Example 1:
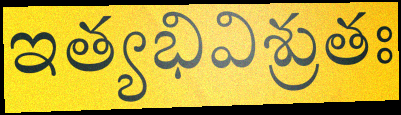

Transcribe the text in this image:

ఇత్యభివిశ్రుతః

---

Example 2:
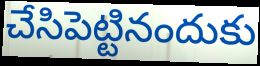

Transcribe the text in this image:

చేసిపెట్టినందుకు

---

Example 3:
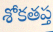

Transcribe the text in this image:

శోకతప్త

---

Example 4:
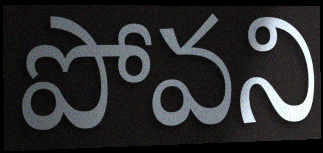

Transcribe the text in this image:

పోవని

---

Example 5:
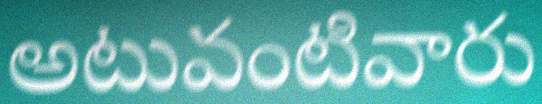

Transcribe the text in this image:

అటువంటివారు